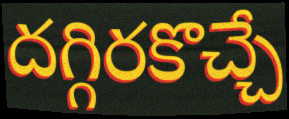
దగ్గిరకొచ్చే